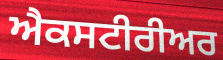
ਐਕਸਟੀਰੀਅਰ